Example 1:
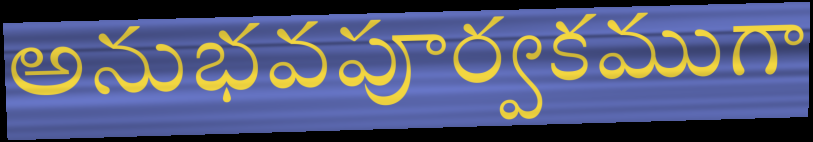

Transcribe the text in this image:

అనుభవపూర్వకముగా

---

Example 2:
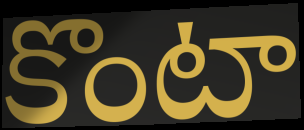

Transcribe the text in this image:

కొంటా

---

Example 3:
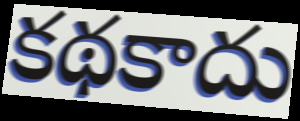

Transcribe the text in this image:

కథకాదు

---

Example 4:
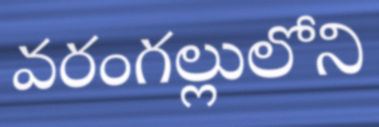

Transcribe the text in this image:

వరంగల్లులోని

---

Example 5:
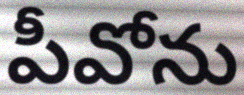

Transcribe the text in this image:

పీవోను